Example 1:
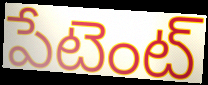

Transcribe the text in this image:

పేటెంట్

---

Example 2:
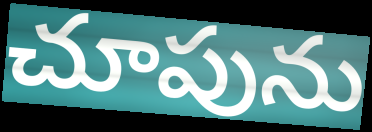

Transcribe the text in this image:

చూపును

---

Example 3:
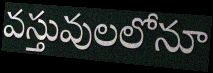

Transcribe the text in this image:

వస్తువులలోనూ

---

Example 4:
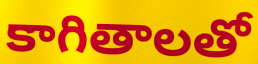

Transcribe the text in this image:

కాగితాలతో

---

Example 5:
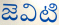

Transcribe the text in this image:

జెవిటి